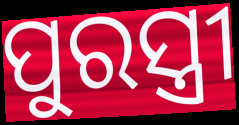
ପୁରସ୍ତ୍ରୀ